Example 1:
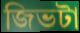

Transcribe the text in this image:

জিভটা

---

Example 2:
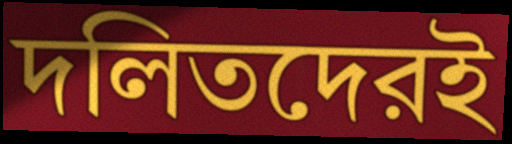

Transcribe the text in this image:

দলিতদেরই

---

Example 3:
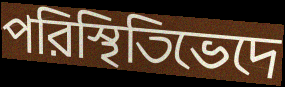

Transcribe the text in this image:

পরিস্থিতিভেদে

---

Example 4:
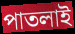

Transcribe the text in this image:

পাতলাই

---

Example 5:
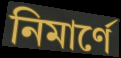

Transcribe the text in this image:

নিমার্ণে